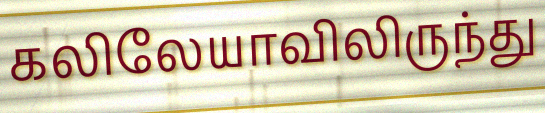
கலிலேயாவிலிருந்து